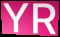
YR